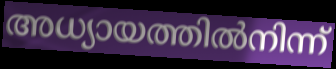
അധ്യായത്തിൽനിന്ന്